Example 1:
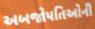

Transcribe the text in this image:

અબજોપતિઓની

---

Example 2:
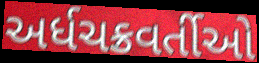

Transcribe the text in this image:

અર્ધચક્રવર્તીઓ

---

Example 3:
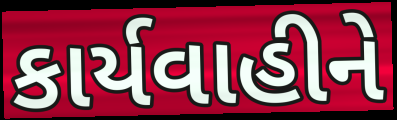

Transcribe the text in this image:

કાર્યવાહીને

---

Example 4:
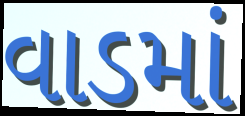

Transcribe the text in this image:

વાડમાં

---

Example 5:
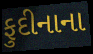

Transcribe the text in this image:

ફુદીનાના